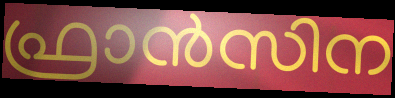
ഫ്രാൻസിന